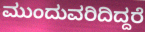
ಮುಂದುವರಿದಿದ್ದರೆ